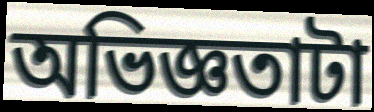
অভিজ্ঞতাটা